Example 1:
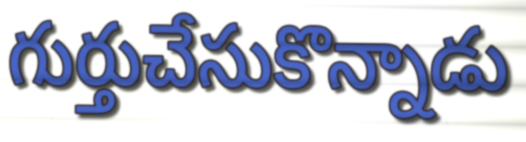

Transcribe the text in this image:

గుర్తుచేసుకొన్నాడు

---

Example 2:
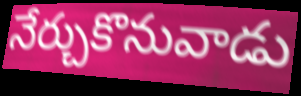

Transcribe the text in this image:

నేర్చుకొనువాడు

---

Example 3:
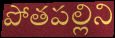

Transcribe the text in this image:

పోతపల్లిని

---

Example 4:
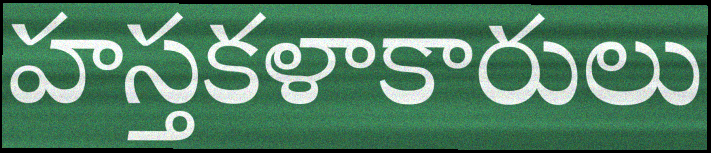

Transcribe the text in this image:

హస్తకళాకారులు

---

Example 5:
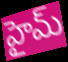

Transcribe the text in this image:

హైమ్